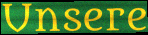
Unsere